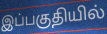
இப்பகுதியில்